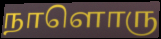
நாளொரு